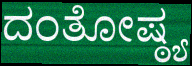
ದಂತೋಷ್ಠ್ಯ